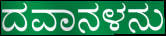
ದವಾನಳನು